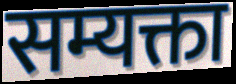
सम्यक्ता